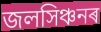
জলসিঞ্চনৰ